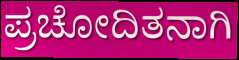
ಪ್ರಚೋದಿತನಾಗಿ